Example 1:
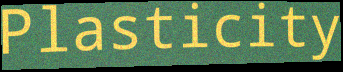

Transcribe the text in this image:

Plasticity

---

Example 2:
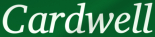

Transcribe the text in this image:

Cardwell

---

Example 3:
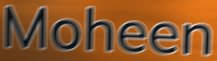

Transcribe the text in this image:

Moheen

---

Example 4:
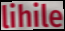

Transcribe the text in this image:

lihile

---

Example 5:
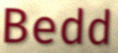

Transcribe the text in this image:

Bedd